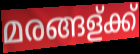
മരങ്ങള്ക്ക്